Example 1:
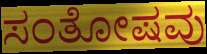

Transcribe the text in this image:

ಸಂತೋಷವು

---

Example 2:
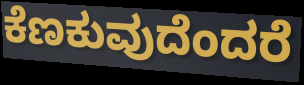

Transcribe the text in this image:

ಕೆಣಕುವುದೆಂದರೆ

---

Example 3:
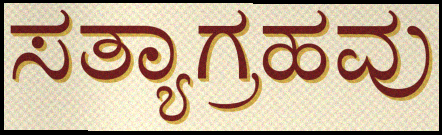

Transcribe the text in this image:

ಸತ್ಯಾಗ್ರಹವು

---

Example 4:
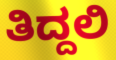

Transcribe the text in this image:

ತಿದ್ದಲಿ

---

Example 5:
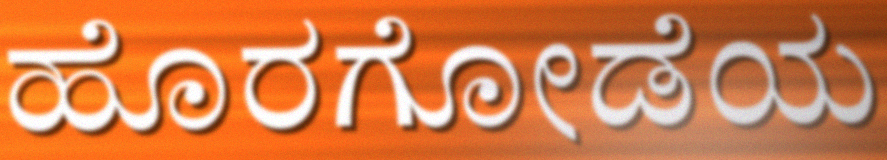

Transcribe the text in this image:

ಹೊರಗೋಡೆಯ